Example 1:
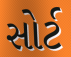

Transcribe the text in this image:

સોર્ટ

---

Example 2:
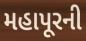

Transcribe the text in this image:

મહાપૂરની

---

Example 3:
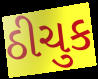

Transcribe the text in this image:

ઠીચુક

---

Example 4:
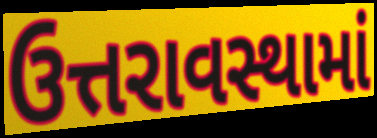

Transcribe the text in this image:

ઉત્તરાવસ્થામાં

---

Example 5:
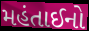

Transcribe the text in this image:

મહંતાઈનો